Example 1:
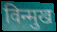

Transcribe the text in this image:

विन्मुख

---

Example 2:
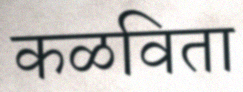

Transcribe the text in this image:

कळविता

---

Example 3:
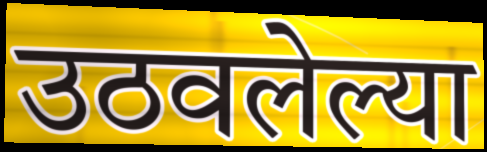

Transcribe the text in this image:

उठवलेल्या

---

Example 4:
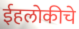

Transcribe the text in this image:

ईहलोकीचे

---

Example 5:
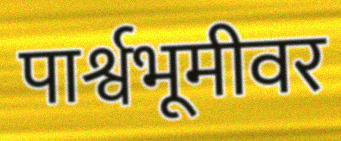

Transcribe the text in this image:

पार्श्वभूमीवर